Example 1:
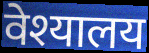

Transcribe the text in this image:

वेश्यालय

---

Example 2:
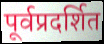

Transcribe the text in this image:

पूर्वप्रदर्शित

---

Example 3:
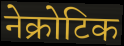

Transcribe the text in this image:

नेक्रोटिक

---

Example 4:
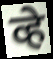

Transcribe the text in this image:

व्हे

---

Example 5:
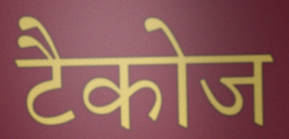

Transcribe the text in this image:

टैकोज